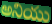
అనియు